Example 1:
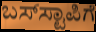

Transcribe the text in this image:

ಬಸ್‌ಸ್ಟಾಪಿಗೆ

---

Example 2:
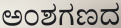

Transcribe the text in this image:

ಅಂಶಗಣದ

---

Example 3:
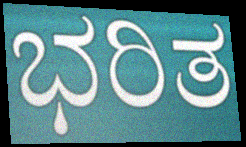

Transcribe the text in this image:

ಭರಿತ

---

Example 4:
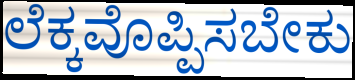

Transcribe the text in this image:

ಲೆಕ್ಕವೊಪ್ಪಿಸಬೇಕು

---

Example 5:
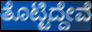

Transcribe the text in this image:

ತೊಟ್ಟಿದ್ದೇವೆ